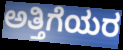
ಅತ್ತಿಗೆಯರ